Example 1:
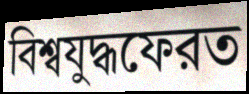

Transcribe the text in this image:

বিশ্বযুদ্ধফেরত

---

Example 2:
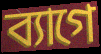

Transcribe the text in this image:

ব্যাগে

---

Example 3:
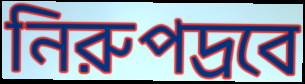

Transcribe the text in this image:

নিরুপদ্রবে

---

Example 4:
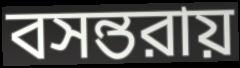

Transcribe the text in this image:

বসন্তরায়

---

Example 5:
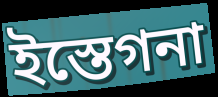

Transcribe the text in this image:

ইস্তেগনা